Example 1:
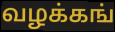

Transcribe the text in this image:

வழக்கங்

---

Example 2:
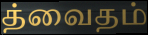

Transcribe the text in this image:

த்வைதம்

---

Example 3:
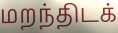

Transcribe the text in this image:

மறந்திடக்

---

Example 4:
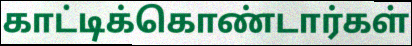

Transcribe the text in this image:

காட்டிக்கொண்டார்கள்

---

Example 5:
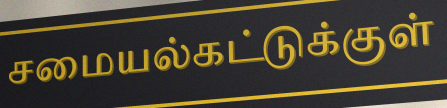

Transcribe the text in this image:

சமையல்கட்டுக்குள்